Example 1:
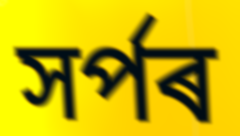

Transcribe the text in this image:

সৰ্পৰ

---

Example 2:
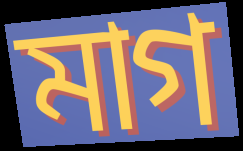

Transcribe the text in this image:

মাগ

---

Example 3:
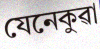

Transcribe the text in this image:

যেনেকুৱা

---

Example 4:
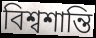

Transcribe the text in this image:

বিশ্বশান্তি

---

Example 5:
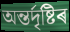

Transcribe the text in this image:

অন্তৰ্দৃষ্টিৰ